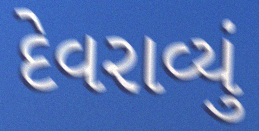
દેવરાવ્યું